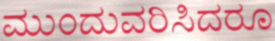
ಮುಂದುವರಿಸಿದರೂ